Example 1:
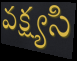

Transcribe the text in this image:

వక్ష్యసి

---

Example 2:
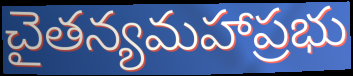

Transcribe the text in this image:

చైతన్యమహాప్రభు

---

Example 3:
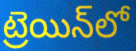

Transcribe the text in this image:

ట్రెయిన్‌లో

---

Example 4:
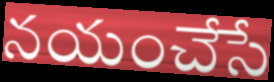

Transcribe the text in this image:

నయంచేసే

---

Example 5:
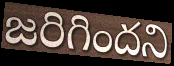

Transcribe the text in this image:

జరిగిందని